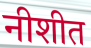
नीशीत